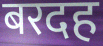
बरदह